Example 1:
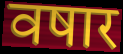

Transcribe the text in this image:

वषार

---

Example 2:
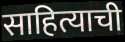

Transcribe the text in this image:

साहित्याची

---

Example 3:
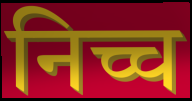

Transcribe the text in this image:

निच्च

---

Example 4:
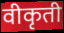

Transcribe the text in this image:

वीकृती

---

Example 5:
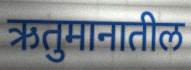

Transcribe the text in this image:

ऋतुमानातील